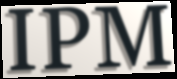
IPM